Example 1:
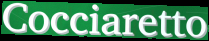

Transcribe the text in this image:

Cocciaretto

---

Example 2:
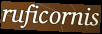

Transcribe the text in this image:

ruficornis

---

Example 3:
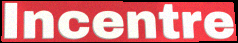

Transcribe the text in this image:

Incentre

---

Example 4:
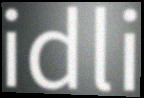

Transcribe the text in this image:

idli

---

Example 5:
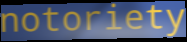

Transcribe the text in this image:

notoriety